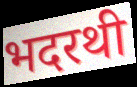
भदरथी